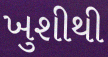
ખુશીથી